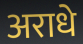
अराधे